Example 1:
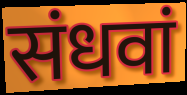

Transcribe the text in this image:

संधवां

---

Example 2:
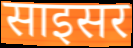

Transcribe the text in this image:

साइसर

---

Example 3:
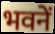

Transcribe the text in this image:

भवनें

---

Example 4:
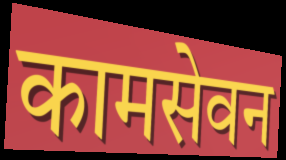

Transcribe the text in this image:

कामसेवन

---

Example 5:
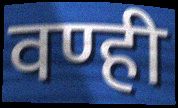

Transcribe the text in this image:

वण्ही